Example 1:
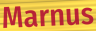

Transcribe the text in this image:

Marnus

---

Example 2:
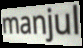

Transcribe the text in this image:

manjul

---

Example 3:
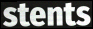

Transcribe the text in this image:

stents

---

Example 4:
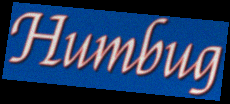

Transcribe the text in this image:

Humbug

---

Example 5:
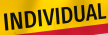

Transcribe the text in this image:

INDIVIDUAL